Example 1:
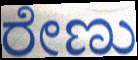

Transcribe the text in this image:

ರೇಣು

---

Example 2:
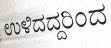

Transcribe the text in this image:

ಉಳಿದದ್ದರಿಂದ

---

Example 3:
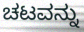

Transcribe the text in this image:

ಚಟವನ್ನು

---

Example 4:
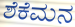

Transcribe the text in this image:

ಶೆಕೆಮನ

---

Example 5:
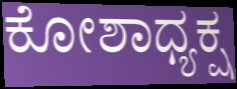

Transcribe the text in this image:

ಕೋಶಾಧ್ಯಕ್ಷ